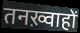
तनख़्वाहों